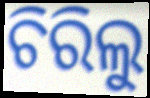
ଚିରିଲୁ